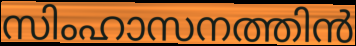
സിംഹാസനത്തിൻ